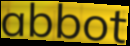
abbot